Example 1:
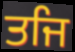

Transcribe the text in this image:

ਤਜਿ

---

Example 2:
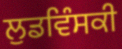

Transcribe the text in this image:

ਲੁਡਵਿੰਸਕੀ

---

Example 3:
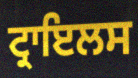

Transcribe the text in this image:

ਟ੍ਰਾਇਲਸ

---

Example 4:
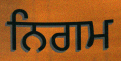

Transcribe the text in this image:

ਨਿਗਮ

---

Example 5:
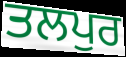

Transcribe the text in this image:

ਤਲਪੁਰ